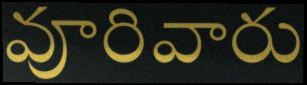
వూరివారు